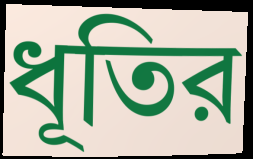
ধূতির